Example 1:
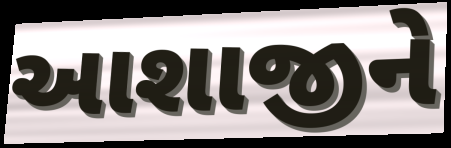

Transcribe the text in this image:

આશાજીને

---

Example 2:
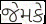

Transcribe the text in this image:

જેમકે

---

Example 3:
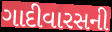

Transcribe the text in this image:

ગાદીવારસની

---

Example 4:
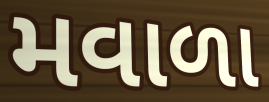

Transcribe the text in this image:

મવાળા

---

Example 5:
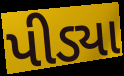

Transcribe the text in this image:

પીડ્યા